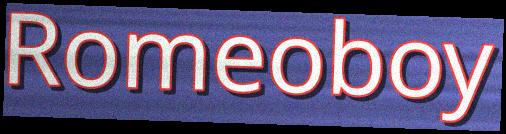
Romeoboy